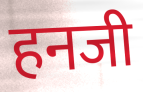
हनजी